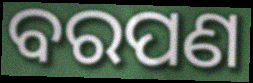
ବରପଣ